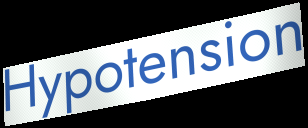
Hypotension